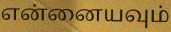
என்னையவும்